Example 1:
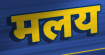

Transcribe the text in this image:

मलय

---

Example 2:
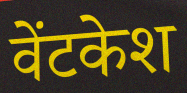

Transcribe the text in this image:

वेंटकेश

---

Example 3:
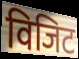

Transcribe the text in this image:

विजिट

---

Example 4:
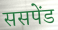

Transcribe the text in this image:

ससपेंड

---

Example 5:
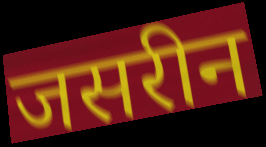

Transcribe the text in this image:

जसरीन